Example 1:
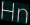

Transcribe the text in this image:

Hn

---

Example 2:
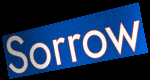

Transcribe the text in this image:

Sorrow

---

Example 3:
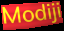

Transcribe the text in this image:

Modiji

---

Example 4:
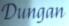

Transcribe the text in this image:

Dungan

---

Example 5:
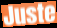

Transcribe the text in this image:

Juste